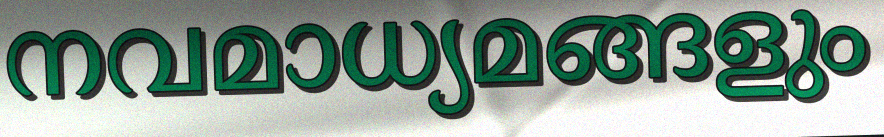
നവമാധ്യമങ്ങളും